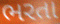
ભરતા